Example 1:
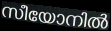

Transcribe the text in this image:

സീയോനിൽ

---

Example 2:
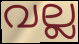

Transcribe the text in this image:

വല്ല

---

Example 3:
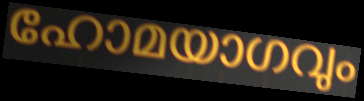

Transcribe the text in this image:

ഹോമയാഗവും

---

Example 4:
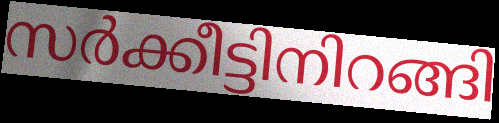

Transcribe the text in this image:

സർക്കീട്ടിനിറങ്ങി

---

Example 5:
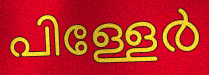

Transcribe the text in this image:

പിള്ളേർ